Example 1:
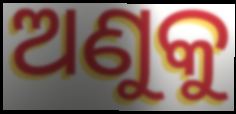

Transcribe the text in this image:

ଅଣୁକୁ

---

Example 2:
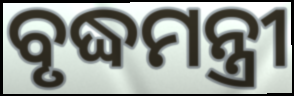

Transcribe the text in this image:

ବୃଦ୍ଧମନ୍ତ୍ରୀ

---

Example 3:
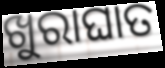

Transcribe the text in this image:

ଖୁରାଘାତ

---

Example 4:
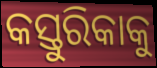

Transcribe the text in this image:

କସ୍ତୁରିକାକୁ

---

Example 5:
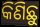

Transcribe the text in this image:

କିଣିଛୁ